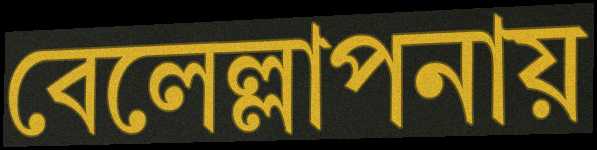
বেলেল্লাপনায়